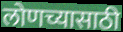
लोणच्यासाठी